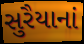
સુરૈયાનાં